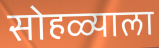
सोहळ्याला